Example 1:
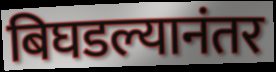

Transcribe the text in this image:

बिघडल्यानंतर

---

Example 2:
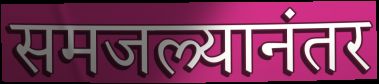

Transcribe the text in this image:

समजल्यानंतर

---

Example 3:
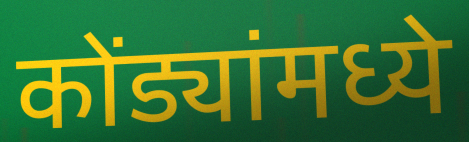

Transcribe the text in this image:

कोंड्यांमध्ये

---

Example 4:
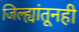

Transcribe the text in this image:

जिल्ह्यांतूनही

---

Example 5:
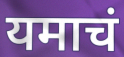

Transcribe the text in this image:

यमाचं